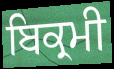
ਬਿਕ੍ਰਮੀ